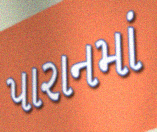
પારાનમાં